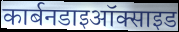
कार्बनडाइऑक्साइड